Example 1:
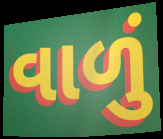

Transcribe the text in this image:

વાળું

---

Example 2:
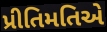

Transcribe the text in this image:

પ્રીતિમતિએ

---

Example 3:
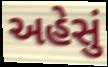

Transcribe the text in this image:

અહેસું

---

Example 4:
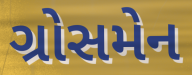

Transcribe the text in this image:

ગ્રોસમેન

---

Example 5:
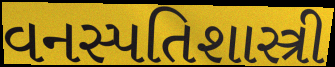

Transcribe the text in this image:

વનસ્પતિશાસ્ત્રી